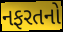
નફરતનો